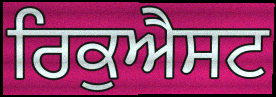
ਰਿਕੁਐਸਟ